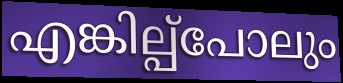
എങ്കില്പ്പോലും